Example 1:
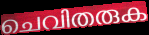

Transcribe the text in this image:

ചെവിതരുക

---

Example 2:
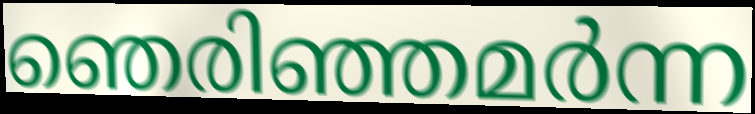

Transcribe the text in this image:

ഞെരിഞ്ഞമർന്ന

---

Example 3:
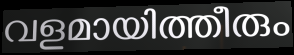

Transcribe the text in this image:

വളമായിത്തീരും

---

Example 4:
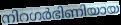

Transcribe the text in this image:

നിറഗർഭിണിയായ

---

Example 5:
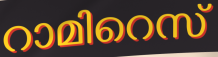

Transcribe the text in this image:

റാമിറെസ്